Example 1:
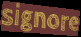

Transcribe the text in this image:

signore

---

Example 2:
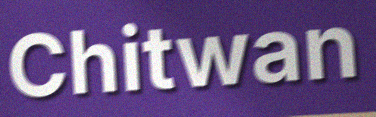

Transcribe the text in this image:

Chitwan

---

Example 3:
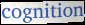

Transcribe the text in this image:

cognition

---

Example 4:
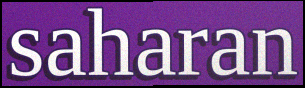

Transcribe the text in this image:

saharan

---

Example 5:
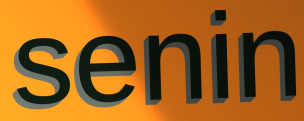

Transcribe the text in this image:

senin